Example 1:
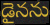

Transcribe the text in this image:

డైనను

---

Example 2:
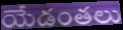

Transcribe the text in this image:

యేడంతలు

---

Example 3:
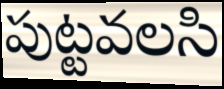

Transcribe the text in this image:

పుట్టవలసి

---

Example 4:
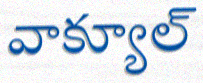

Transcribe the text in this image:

వాక్యూల్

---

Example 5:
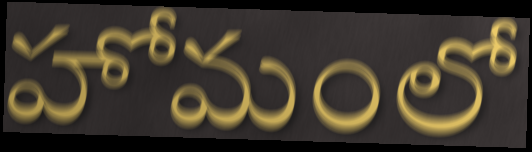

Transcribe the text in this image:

హోమంలో